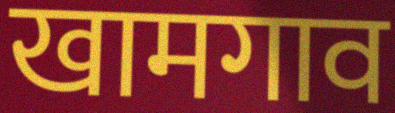
खामगाव